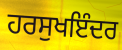
ਹਰਸੁਖਇੰਦਰ